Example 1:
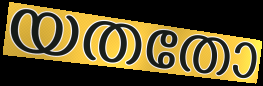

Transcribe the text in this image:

യതതോ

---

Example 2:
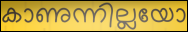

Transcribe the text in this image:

കാണുന്നില്ലയോ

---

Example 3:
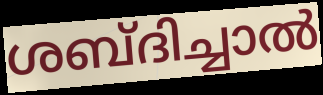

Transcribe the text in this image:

ശബ്ദിച്ചാൽ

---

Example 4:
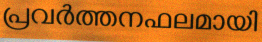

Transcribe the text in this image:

പ്രവർത്തനഫലമായി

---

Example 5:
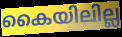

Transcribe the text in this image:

കൈയിലില്ല